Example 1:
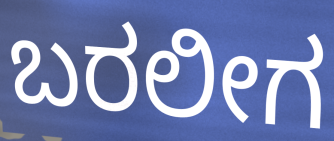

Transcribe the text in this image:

ಬರಲೀಗ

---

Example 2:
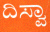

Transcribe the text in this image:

ದಿಸ್ವಾ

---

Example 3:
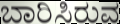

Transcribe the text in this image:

ಬಾರಿಸಿರುವ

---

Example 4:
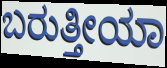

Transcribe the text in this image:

ಬರುತ್ತೀಯಾ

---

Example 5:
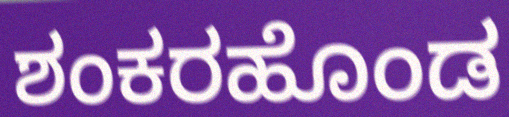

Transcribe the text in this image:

ಶಂಕರಹೊಂಡ